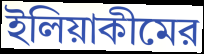
ইলিয়াকীমের